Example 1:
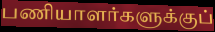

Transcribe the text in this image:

பணியாளர்களுக்குப்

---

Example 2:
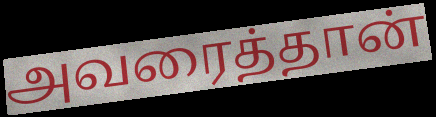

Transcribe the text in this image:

அவரைத்தான்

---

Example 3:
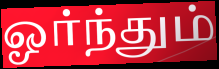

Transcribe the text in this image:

ஓர்ந்தும்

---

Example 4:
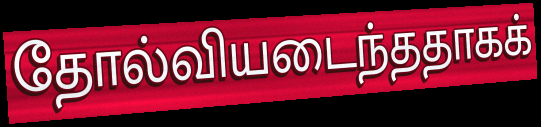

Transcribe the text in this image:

தோல்வியடைந்ததாகக்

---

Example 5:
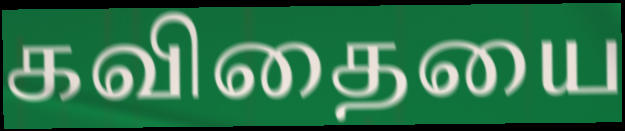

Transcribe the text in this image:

கவிதையை